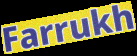
Farrukh